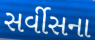
સર્વીસના